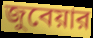
জুবেয়ার